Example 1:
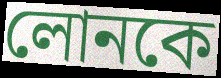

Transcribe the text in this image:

লোনকে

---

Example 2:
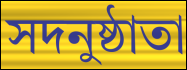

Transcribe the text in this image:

সদনুষ্ঠাতা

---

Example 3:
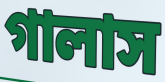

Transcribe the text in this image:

গালাস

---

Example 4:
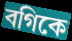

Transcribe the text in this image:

বগিকে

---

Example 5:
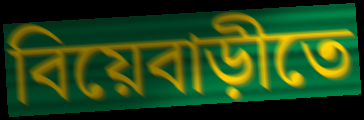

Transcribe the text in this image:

বিয়েবাড়ীতে